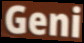
Geni